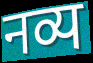
नव्य